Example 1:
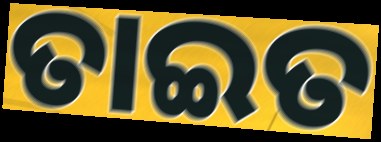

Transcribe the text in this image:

ତାଇତ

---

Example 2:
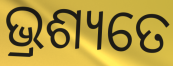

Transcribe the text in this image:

ଭ୍ରଶ୍ୟତେ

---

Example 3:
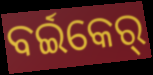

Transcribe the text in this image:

ବର୍ଇକେର୍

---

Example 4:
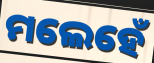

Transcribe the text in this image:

ମଲେହେଁ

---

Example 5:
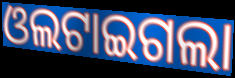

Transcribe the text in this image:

ଓଲଟାଇଗଲା